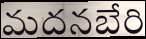
మదనబేరి